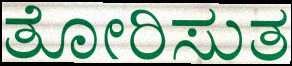
ತೋರಿಸುತ